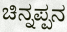
ಚಿನ್ನಪ್ಪನ